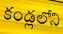
కండ్లలోని